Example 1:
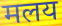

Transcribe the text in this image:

मलय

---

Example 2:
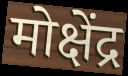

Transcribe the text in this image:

मोक्षेंद्र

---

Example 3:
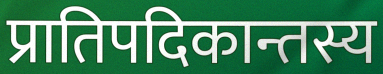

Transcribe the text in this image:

प्रातिपदिकान्तस्य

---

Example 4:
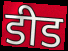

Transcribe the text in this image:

डीड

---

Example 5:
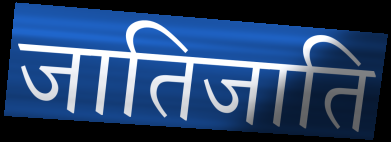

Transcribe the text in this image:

जातिजाति